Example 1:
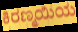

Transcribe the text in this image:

ಕಿರಣ್ಮಯಿಯ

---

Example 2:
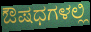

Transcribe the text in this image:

ಔಷಧಗಳಲ್ಲಿ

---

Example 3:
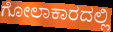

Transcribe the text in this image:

ಗೋಲಾಕಾರದಲ್ಲಿ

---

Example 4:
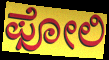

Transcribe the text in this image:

ಫೋಲಿ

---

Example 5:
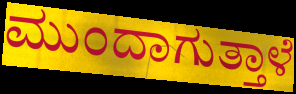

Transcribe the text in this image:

ಮುಂದಾಗುತ್ತಾಳೆ